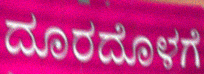
ದೂರದೊಳಗೆ